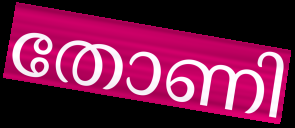
തോണി